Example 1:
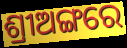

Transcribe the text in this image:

ଶ୍ରୀଅଙ୍ଗରେ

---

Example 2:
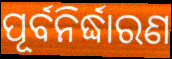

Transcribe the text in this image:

ପୂର୍ବନିର୍ଦ୍ଧାରଣ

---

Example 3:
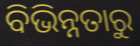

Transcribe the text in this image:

ବିଭିନ୍ନତାରୁ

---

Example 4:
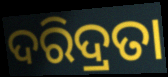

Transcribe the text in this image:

ଦରିଦ୍ରତା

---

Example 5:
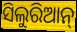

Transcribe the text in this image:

ସିଲୁରିଆନ୍